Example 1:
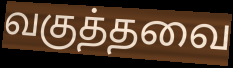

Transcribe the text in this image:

வகுத்தவை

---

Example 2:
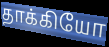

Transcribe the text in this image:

தாக்கியோ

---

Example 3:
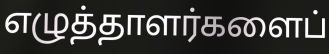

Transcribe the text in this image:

எழுத்தாளர்களைப்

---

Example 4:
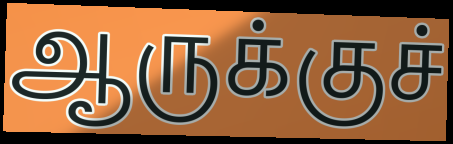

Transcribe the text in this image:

ஆருக்குச்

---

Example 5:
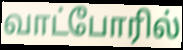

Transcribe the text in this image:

வாட்போரில்